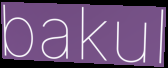
bakul